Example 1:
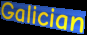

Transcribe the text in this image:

Galician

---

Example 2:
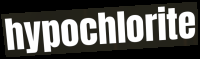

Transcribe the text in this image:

hypochlorite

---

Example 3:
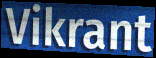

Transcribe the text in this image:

Vikrant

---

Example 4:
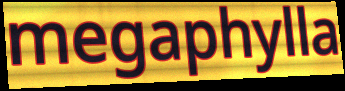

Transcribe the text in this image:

megaphylla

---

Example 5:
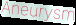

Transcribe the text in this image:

Aneurysm